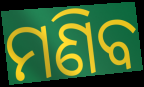
ମଣିବ